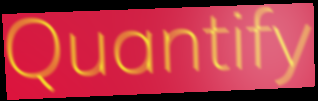
Quantify